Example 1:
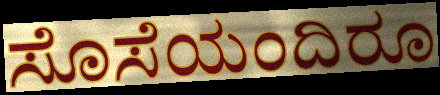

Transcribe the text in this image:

ಸೊಸೆಯಂದಿರೂ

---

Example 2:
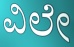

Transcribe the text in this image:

ವಿಲೇ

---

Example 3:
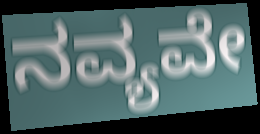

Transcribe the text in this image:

ನವ್ಯವೇ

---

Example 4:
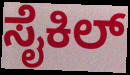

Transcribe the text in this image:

ಸೈಕಿಲ್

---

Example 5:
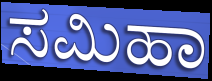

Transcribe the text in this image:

ಸಮಿಹಾ